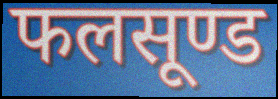
फलसूण्ड